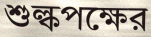
শুল্কপক্ষের